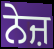
ਨੇਜ਼